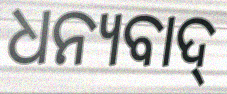
ଧନ୍ୟବାଦ୍